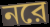
নরে